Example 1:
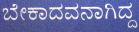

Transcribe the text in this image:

ಬೇಕಾದವನಾಗಿದ್ದ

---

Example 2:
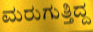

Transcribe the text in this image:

ಮರುಗುತ್ತಿದ್ದ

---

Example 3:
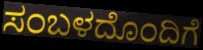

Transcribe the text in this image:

ಸಂಬಳದೊಂದಿಗೆ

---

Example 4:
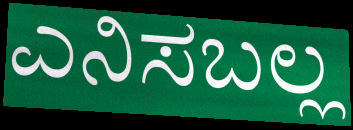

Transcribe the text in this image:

ಎನಿಸಬಲ್ಲ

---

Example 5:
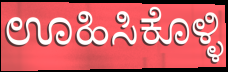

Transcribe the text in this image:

ಊಹಿಸಿಕೊಳ್ಳಿ